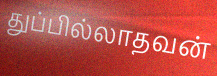
துப்பில்லாதவன்